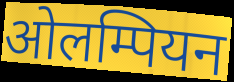
ओलम्पियन